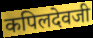
कपिलदेवजी